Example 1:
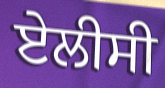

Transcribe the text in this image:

ਏਲੀਸੀ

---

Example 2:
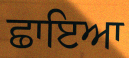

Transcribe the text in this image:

ਛਾਇਆ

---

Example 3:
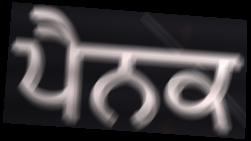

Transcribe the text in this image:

ਪੈਨਕ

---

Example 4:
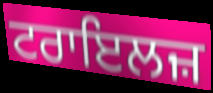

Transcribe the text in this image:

ਟਰਾਇਲਜ਼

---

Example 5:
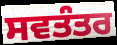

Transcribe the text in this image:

ਸਵਤੰਤਰ